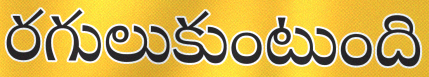
రగులుకుంటుంది